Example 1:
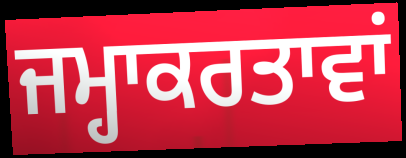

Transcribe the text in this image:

ਜਮ੍ਹਾਕਰਤਾਵਾਂ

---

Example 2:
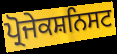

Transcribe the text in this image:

ਪ੍ਰੋਜੇਕਸ਼ਨਿਸਟ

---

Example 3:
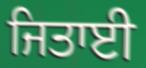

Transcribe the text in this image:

ਜਿਤਾਈ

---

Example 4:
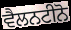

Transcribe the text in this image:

ਵੈਲਨਟੀਨੋ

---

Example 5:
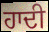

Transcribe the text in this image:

ਹਾਦੀ